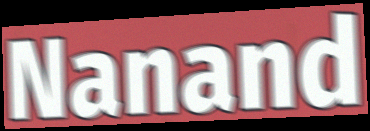
Nanand